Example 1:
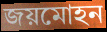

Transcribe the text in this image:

জয়মোহন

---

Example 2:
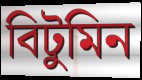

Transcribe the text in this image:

বিটুমিন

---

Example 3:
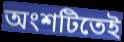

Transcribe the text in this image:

অংশটিতেই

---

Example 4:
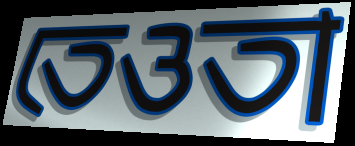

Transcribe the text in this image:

তেওতা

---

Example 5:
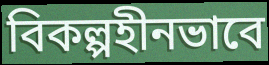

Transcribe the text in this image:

বিকল্পহীনভাবে